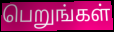
பெறுங்கள்